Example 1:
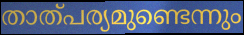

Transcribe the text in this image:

താത്പര്യമുണ്ടെന്നും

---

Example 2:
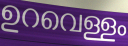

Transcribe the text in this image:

ഉറവെള്ളം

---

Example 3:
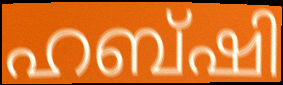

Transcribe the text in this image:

ഹബ്ഷി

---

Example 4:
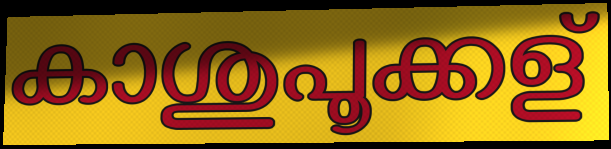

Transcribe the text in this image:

കാശുപൂക്കള്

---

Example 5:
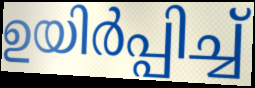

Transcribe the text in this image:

ഉയിർപ്പിച്ച്